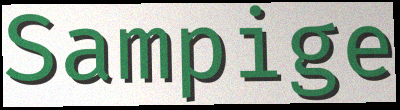
Sampige